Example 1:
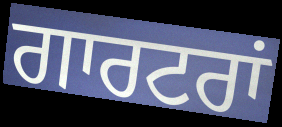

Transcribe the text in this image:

ਗਾਰਟਰਾਂ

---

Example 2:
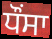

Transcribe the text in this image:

ਧੌਂਸਾ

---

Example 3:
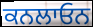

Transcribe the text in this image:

ਕਨਲਾਓਨ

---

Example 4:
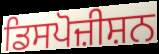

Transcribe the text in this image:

ਡਿਸਪੋਜ਼ੀਸ਼ਨ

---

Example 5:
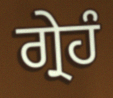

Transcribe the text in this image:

ਗ੍ਰੇਹੰ